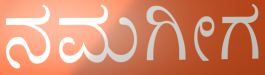
ನಮಗೀಗ